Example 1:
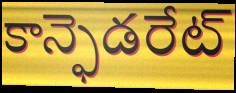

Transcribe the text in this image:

కాన్ఫెడరేట్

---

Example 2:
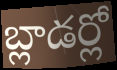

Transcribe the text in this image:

బ్లాడర్లో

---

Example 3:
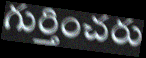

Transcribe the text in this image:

గుర్తించరు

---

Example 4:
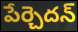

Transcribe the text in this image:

పేర్చెదన్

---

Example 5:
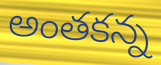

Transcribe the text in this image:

అంతకన్న